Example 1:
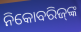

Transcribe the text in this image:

ନିକୋବରିଜ୍‍ଙ୍କ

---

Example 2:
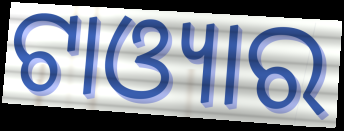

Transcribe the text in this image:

ଟାଓ୍ୟାର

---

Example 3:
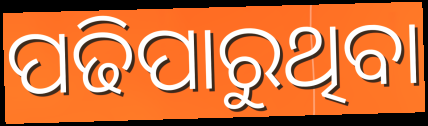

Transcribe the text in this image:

ପଢିପାରୁଥିବା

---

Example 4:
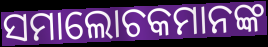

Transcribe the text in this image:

ସମାଲୋଚକମାନଙ୍କ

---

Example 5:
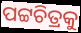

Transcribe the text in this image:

ପଟ୍ଟଚିତ୍ରକୁ